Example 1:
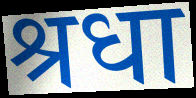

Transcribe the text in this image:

श्रधा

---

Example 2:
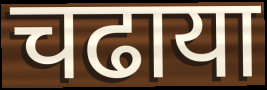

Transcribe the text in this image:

चढाया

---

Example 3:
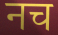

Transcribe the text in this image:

नच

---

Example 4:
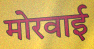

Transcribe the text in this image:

मोरवाई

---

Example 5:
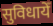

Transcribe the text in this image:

सुविधायेँ